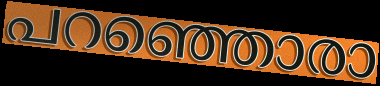
പറഞ്ഞൊരാ